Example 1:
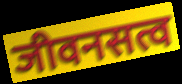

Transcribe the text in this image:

जीवनसत्व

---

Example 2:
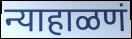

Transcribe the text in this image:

न्याहाळणं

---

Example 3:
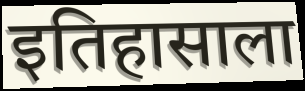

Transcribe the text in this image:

इतिहासाला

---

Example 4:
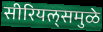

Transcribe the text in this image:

सीरियल्समुळे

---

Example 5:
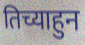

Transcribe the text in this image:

तिच्याहुन